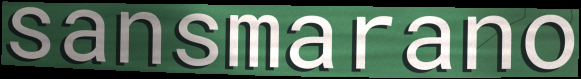
sansmarano